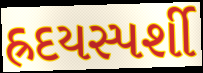
હ્રદયસ્પર્શી